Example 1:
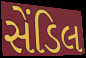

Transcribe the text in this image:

સેંડિલ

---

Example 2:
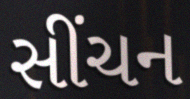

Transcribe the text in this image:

સીંચન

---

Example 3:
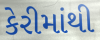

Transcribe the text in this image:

કેરીમાંથી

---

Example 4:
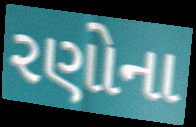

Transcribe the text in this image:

રણોના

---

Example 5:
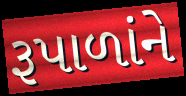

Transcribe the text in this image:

રૂપાળાંને